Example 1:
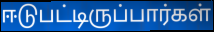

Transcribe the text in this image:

ஈடுபட்டிருப்பார்கள்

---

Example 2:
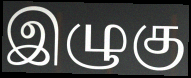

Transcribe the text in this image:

இழுகு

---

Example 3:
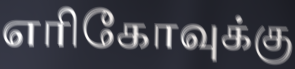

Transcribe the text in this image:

எரிகோவுக்கு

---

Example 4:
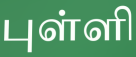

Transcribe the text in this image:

புள்ளி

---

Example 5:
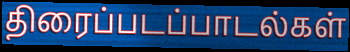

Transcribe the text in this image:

திரைப்படப்பாடல்கள்